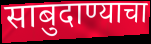
साबुदाण्याचा